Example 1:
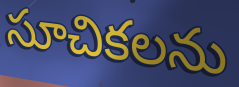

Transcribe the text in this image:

సూచికలను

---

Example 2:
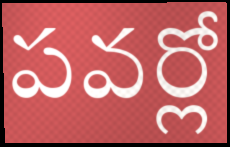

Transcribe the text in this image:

పవర్లో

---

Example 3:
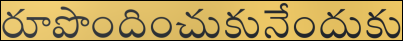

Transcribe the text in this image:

రూపొందించుకునేందుకు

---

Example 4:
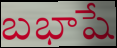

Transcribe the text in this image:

బభాషే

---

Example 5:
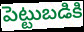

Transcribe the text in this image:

పెట్టుబడికి